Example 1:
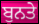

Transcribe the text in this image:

ਬੁਨਤੇ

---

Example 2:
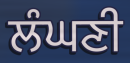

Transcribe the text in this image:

ਲੰਘਣੀ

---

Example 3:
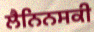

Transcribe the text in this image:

ਲੈਨਿਨਸਕੀ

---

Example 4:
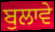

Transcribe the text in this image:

ਬੁਲਾਵੇ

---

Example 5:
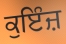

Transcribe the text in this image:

ਕੁਇੰਜ਼